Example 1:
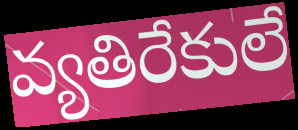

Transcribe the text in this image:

వ్యతిరేకులే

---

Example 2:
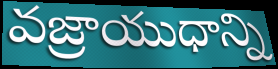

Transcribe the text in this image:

వజ్రాయుధాన్ని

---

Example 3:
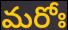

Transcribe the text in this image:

మరోః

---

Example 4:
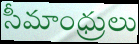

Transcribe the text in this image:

సీమాంధ్రులు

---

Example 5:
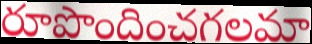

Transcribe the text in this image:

రూపొందించగలమా